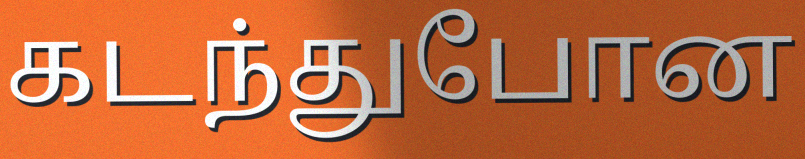
கடந்துபோன